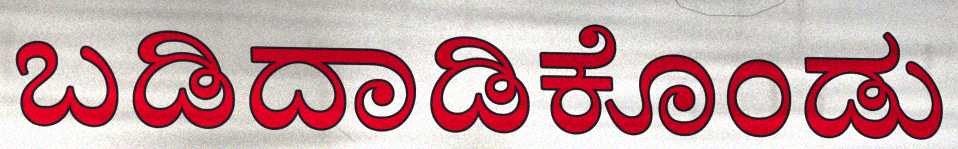
ಬಡಿದಾಡಿಕೊಂಡು